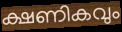
ക്ഷണികവും